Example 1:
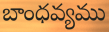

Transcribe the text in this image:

బాంధవ్యము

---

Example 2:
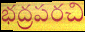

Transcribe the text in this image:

భద్రపరచి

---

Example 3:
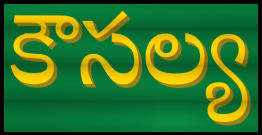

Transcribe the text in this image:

కౌసల్య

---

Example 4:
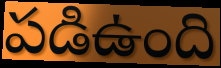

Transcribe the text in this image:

పడిఉంది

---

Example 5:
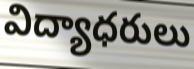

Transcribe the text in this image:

విద్యాధరులు